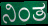
ನಿಂತ